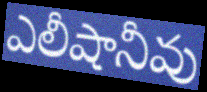
ఎలీషానీవు